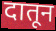
दातून